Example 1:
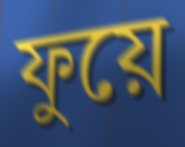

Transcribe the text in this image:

ফুয়ে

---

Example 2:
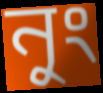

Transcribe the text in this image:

নুং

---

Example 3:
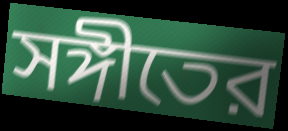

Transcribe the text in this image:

সঙ্গীতের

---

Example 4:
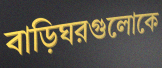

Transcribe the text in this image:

বাড়িঘরগুলোকে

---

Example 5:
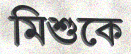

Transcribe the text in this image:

মিশুকে